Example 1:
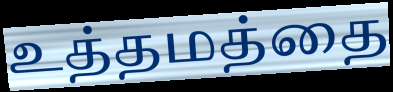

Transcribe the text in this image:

உத்தமத்தை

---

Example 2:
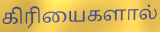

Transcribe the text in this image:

கிரியைகளால்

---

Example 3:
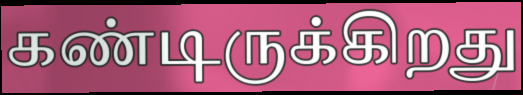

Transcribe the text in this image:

கண்டிருக்கிறது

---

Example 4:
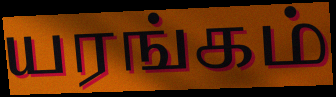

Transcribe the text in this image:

யரங்கம்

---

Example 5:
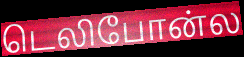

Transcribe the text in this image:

டெலிபோன்ல